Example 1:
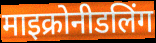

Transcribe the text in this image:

माइक्रोनीडलिंग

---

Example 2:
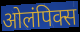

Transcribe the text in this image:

ओलंपिक्स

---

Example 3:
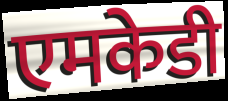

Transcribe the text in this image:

एमकेडी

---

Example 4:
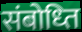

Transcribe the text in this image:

संबोध्ति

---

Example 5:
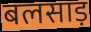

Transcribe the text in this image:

बलसाड़